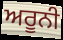
ਅਰੂਨੀ